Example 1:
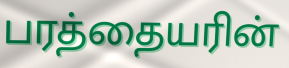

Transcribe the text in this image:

பரத்தையரின்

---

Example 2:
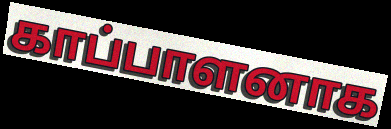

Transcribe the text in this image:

காப்பாளனாக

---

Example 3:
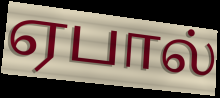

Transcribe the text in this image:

ஏபால்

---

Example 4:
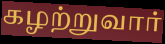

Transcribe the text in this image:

கழற்றுவார்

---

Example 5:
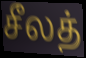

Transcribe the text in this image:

சீலத்